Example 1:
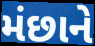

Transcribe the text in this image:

મંછાને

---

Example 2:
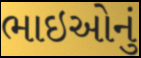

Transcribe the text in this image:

ભાઇઓનું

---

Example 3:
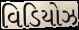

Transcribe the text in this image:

વિડિયોઝ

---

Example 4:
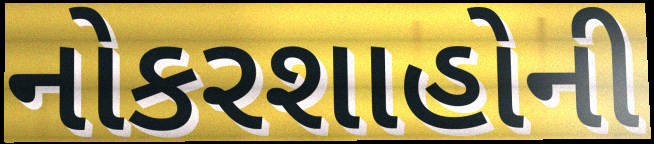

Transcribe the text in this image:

નોકરશાહોની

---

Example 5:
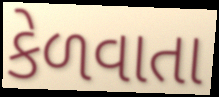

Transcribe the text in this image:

કેળવાતા